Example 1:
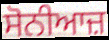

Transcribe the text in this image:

ਸੋਨੀਆਜ਼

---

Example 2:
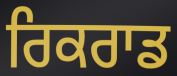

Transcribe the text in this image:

ਰਿਕਰਾਡ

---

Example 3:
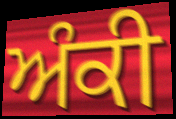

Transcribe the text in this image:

ਅੰਕੀ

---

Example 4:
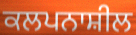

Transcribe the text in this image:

ਕਲਪਨਾਸ਼ੀਲ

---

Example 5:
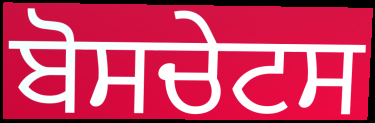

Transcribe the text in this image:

ਬੋਸਚੇਟਸ